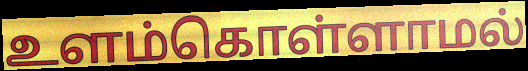
உளம்கொள்ளாமல்